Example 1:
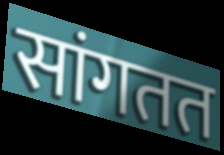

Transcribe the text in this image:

सांगतत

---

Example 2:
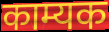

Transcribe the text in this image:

काम्यक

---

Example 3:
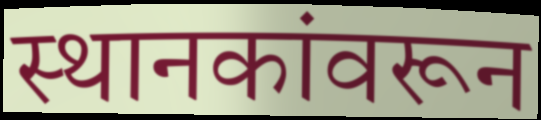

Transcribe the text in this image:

स्थानकांवरून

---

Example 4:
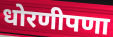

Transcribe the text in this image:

धोरणीपणा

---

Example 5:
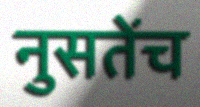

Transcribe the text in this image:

नुसतेंच